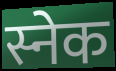
स्‍नेक